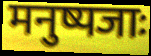
मनुष्यजाः